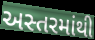
અસ્તરમાંથી